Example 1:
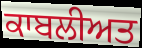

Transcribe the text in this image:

ਕਾਬਲੀਅਤ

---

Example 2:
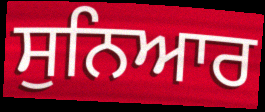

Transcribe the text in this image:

ਸੁਨਿਆਰ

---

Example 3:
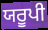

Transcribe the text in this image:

ਯਰੂਪੀ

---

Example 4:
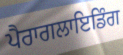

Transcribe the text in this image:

ਪੈਰਾਗਲਾਇਡਿੰਗ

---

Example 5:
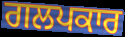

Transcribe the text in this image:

ਗਲਪਕਾਰ